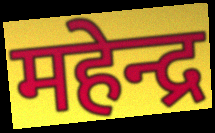
महेन्‍द्र